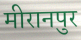
मीरानपुर